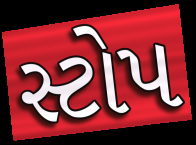
સ્ટોપ